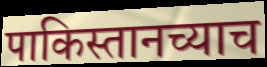
पाकिस्तानच्याच